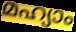
മഹ്യാം